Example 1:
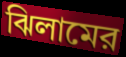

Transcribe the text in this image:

ঝিলামের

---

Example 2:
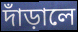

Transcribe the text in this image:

দাঁড়ালে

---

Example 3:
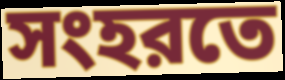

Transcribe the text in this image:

সংহরতে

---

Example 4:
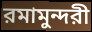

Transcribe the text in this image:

রমামুন্দরী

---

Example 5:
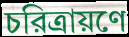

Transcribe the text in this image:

চরিত্রায়ণে